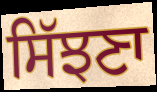
ਸਿੱਝਣਾ